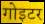
गोइटर